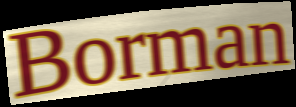
Borman